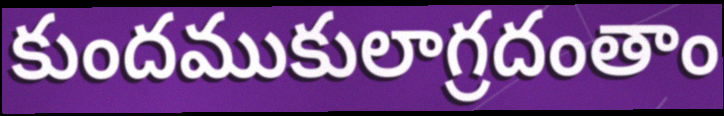
కుందముకులాగ్రదంతాం